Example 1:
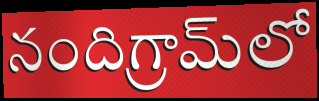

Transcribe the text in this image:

నందిగ్రామ్‌లో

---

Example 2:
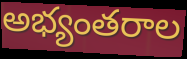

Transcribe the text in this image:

అభ్యంతరాల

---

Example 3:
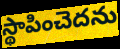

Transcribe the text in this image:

స్థాపించెదను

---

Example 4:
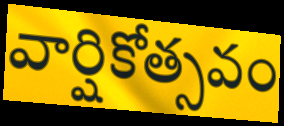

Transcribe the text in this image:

వార్షికోత్సవం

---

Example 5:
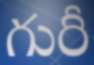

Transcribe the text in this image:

గురీ